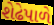
શેઢેપાળે